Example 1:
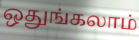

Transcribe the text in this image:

ஒதுங்கலாம்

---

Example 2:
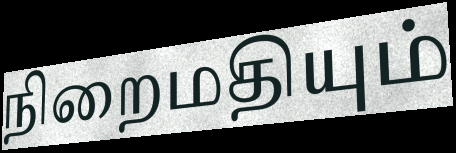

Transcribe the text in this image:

நிறைமதியும்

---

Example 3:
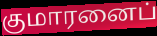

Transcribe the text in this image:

குமாரனைப்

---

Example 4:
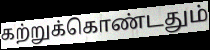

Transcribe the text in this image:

கற்றுக்கொண்டதும்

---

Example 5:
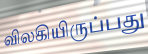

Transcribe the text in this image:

விலகியிருப்பது